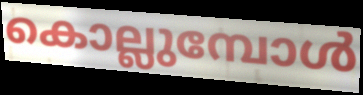
കൊല്ലുമ്പോൾ